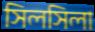
সিলসিলা